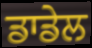
ਡਾਡੇਲ